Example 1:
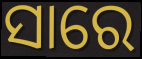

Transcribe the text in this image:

ସାରେ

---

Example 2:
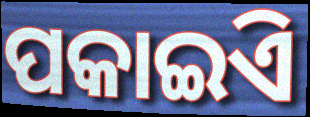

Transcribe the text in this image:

ପକାଇିଏ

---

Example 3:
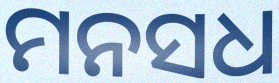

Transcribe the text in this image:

ମନସଧ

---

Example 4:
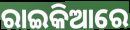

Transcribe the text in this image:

ରାଇକିଆରେ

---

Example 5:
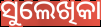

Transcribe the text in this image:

ସୁଲେଖିକା